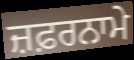
ਜ਼ਫ਼ਰਨਾਮੇ